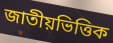
জাতীয়ভিত্তিক